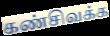
கண்சிவக்க